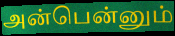
அன்பென்னும்